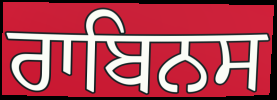
ਰਾਬਿਨਸ